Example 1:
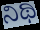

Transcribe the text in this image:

ನಿಥಿ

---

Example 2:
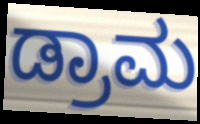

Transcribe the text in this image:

ಡ್ರಾಮ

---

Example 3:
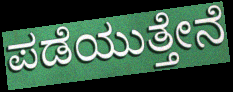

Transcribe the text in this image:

ಪಡೆಯುತ್ತೇನೆ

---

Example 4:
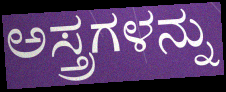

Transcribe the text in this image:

ಅಸ್ತ್ರಗಳನ್ನು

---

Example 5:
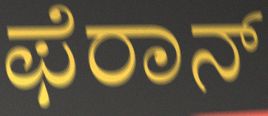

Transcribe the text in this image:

ಫೆರಾನ್